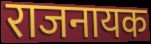
राजनायक